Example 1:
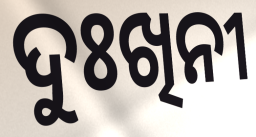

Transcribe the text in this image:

ଦୁଃଖିନୀ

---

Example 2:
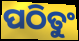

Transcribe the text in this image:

ପଠିତୁଂ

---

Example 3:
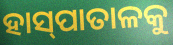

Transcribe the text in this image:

ହାସ୍‍ପାତାଳକୁ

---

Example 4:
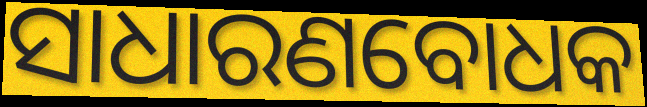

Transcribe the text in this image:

ସାଧାରଣବୋଧକ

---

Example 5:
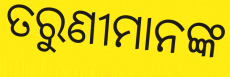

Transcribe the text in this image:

ତରୁଣୀମାନଙ୍କ